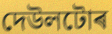
দেউলটোৰ